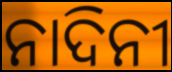
ନାଦିନୀ